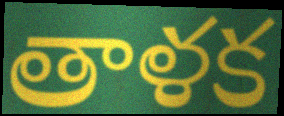
తాళక